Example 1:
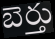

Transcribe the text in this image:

బెర్తు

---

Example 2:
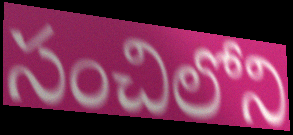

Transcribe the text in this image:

సంచిలోని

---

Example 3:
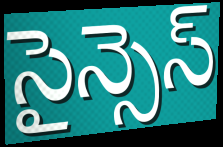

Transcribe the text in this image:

సైన్సెస్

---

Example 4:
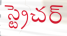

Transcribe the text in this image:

స్ట్రెచర్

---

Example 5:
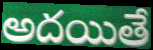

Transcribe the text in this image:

అదయితే